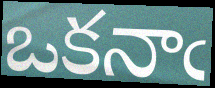
ఒకనాఁ